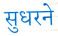
सुधरने